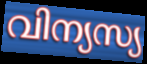
വിന്യസ്യ